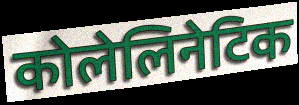
कोलेलिनेटिक